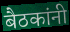
बैठकांनी